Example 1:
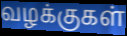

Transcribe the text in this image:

வழக்குகள்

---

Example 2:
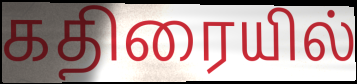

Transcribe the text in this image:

கதிரையில்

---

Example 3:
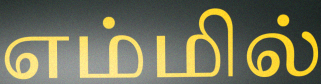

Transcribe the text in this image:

எம்மில்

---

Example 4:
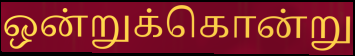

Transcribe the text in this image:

ஒன்றுக்கொன்று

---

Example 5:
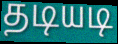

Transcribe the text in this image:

தடியடி